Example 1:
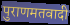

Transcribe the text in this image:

पुराणमतवादी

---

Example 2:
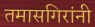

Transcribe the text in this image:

तमासगिरांनी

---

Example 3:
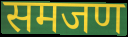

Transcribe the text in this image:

समजण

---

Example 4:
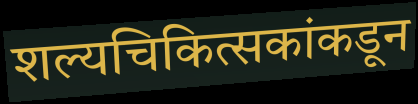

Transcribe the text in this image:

शल्यचिकित्सकांकडून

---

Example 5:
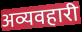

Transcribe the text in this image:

अव्यवहारी